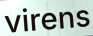
virens